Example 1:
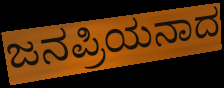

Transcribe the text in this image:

ಜನಪ್ರಿಯನಾದ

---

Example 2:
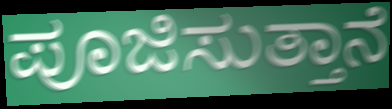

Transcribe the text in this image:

ಪೂಜಿಸುತ್ತಾನೆ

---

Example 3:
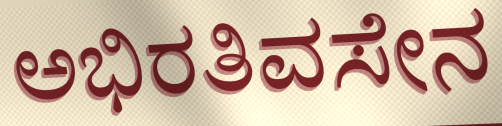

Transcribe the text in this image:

ಅಭಿರತಿವಸೇನ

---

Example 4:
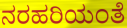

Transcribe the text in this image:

ನರಹರಿಯಂತೆ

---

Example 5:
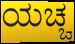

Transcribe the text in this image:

ಯಚ್ಚ